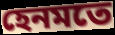
হেনমতে